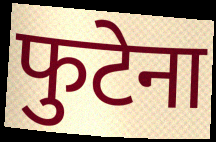
फुटेना